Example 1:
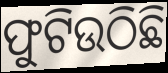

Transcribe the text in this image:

ଫୁଟିଉଠିଛି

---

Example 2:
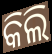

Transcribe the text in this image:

କିଲି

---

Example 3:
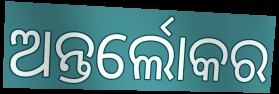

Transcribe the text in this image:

ଅନ୍ତର୍ଲୋକର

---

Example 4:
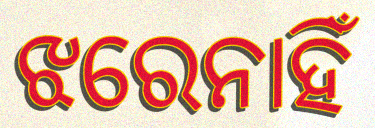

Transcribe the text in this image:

ଝରେନାହିଁ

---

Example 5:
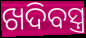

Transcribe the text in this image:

ଖଦିବସ୍ତ୍ର